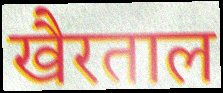
खैरताल